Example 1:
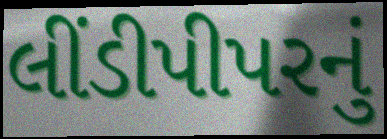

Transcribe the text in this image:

લીંડીપીપરનું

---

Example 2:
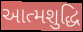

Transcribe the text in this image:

આત્મશુદ્ધિ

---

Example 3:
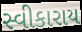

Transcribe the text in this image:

સ્વીકારાય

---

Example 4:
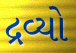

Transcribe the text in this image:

દ્રવ્યો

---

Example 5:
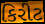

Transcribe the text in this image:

કિરીટ